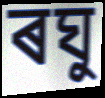
ৰঘু